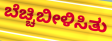
ಬೆಚ್ಚಿಬೀಳಿಸಿತು